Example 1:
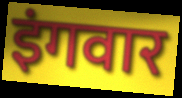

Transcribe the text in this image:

इंगवार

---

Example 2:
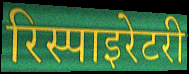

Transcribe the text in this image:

रिस्पाइरेटरी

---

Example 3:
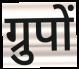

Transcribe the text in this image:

ग्रुपों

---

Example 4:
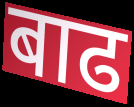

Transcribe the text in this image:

बाढ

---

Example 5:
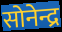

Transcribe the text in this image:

सोनेन्द्र